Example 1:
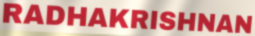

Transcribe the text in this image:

RADHAKRISHNAN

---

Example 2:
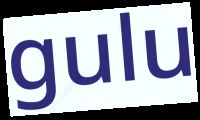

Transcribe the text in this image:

gulu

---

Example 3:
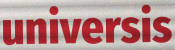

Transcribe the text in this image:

universis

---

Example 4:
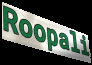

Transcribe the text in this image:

Roopali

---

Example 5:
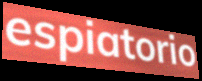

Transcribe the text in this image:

espiatorio